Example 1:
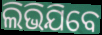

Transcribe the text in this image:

ଲିଭିଯିବେ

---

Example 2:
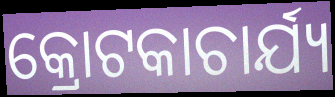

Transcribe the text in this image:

କ୍ରୋଟକାଚାର୍ଯ୍ୟ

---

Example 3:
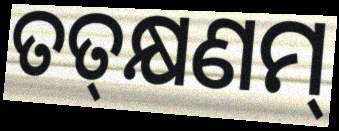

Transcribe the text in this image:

ତତ୍‌କ୍ଷଣମ୍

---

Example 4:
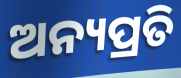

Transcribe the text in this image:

ଅନ୍ୟପ୍ରତି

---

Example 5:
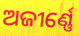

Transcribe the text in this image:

ଅଜୀର୍ଣ୍ଣେ